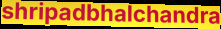
shripadbhalchandra